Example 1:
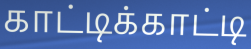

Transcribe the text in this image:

காட்டிக்காட்டி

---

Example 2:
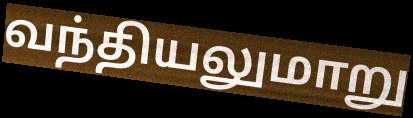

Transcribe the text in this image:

வந்தியலுமாறு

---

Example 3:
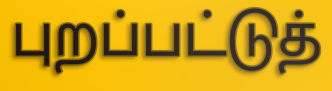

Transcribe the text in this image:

புறப்பட்டுத்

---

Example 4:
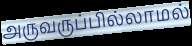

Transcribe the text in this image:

அருவருப்பில்லாமல்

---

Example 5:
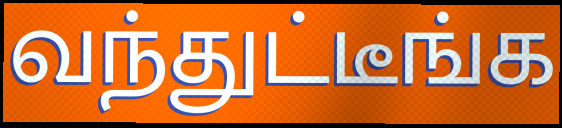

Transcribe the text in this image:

வந்துட்டீங்க